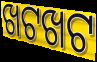
ଖଟଖଟ